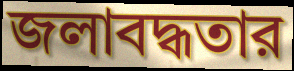
জলাবদ্ধতার